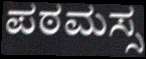
ಪಠಮಸ್ಸ